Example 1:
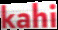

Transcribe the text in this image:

kahi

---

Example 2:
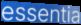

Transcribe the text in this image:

essentia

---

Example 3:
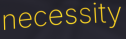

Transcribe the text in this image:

necessity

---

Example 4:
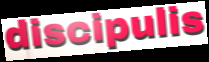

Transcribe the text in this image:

discipulis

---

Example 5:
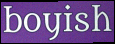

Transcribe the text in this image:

boyish